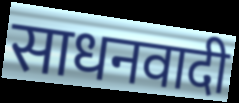
साधनवादी